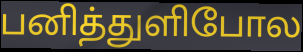
பனித்துளிபோல